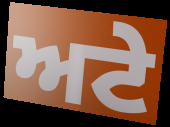
ਅਟੇ